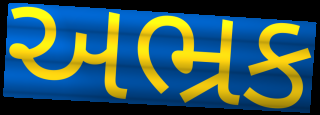
અભ્રક